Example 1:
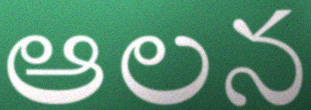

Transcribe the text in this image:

ఆలన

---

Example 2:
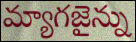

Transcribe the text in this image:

మ్యాగజైన్ను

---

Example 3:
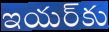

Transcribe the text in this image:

ఇయర్‌కు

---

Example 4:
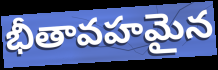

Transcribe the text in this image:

భీతావహమైన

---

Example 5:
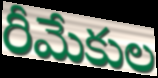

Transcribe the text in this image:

రీమేకుల